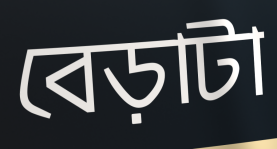
বেড়াটা